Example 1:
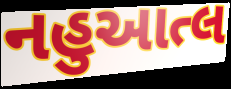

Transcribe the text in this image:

નહુઆત્લ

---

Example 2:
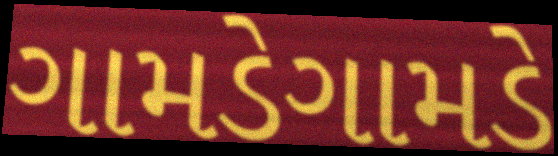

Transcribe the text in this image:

ગામડેગામડે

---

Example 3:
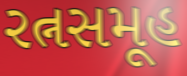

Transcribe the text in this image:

રત્નસમૂહ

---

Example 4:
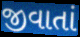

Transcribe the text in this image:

જીવાતાં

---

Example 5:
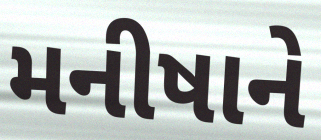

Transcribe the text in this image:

મનીષાને